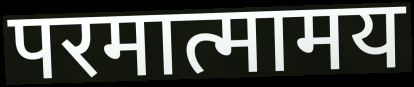
परमात्मामय